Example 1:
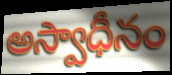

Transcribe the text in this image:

అస్వాధీనం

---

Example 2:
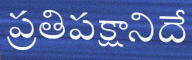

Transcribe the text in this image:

ప్రతిపక్షానిదే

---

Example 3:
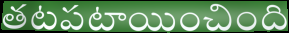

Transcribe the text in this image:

తటపటాయించింది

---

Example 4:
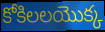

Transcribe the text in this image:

కోకిలలయొక్క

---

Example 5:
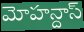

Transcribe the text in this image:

మోహన్దాస్